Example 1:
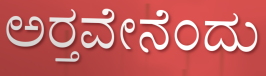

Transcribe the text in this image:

ಅರ‍್ತವೇನೆಂದು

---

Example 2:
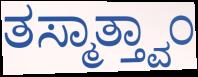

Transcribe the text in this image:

ತಸ್ಮಾತ್ತ್ವಾಂ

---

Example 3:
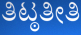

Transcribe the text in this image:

ತಿಟ್ಠತೀತಿ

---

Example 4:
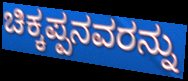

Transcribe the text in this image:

ಚಿಕ್ಕಪ್ಪನವರನ್ನು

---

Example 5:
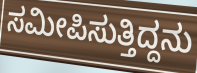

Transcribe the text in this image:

ಸಮೀಪಿಸುತ್ತಿದ್ದನು